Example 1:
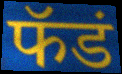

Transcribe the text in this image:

फॅडं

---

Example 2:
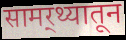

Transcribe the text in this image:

सामर्थ्यातून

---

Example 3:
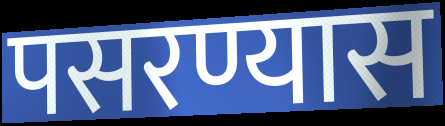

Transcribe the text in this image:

पसरण्यास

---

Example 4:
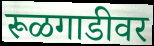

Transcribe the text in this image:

रूळगाडीवर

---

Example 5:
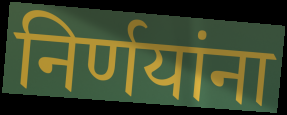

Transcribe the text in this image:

निर्णयांना